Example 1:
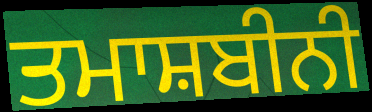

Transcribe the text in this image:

ਤਮਾਸ਼ਬੀਨੀ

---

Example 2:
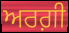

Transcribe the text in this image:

ਅਰਗ਼ੀ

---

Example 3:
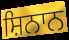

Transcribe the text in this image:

ਸ਼ਿਨਾਨ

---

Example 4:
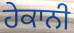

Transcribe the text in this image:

ਹੇਕਾਨੀ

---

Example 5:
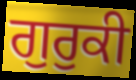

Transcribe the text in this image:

ਗੁਰੁਕੀ